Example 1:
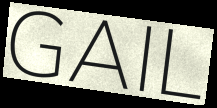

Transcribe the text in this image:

GAIL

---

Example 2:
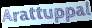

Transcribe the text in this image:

Arattuppal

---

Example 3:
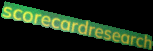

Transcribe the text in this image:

scorecardresearch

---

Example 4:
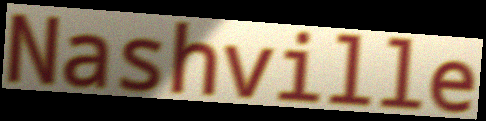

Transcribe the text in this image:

Nashville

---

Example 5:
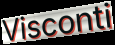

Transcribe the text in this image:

Visconti